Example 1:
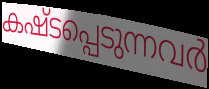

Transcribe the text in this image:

കഷ്ടപ്പെടുന്നവർ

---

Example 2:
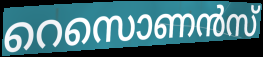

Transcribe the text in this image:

റെസൊണൻസ്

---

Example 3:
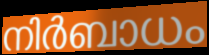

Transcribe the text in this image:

നിർബാധം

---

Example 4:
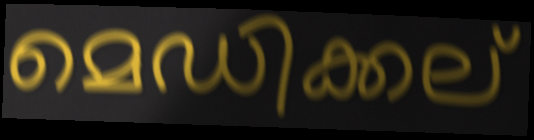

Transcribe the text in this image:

മെഡിക്കല്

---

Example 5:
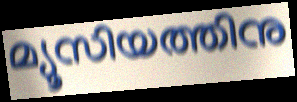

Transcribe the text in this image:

മ്യൂസിയത്തിനു